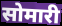
सोमारी